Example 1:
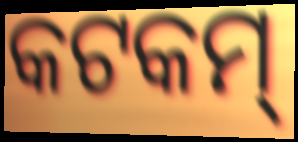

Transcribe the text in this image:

କଟକମ୍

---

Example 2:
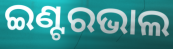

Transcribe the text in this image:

ଇଣ୍ଟରଭାଲ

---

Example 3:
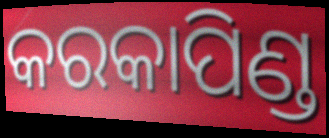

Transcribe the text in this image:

କରକାପିଣ୍ଡ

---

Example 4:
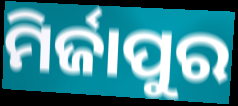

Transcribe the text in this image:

ମିର୍ଜାପୁର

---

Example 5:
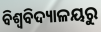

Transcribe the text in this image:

ବିଶ୍ୱବିଦ୍ୟାଳୟରୁ